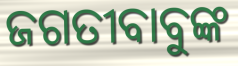
ଜଗତୀବାବୁଙ୍କ